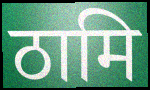
ठामि